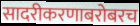
सादरीकरणाबरोबरच